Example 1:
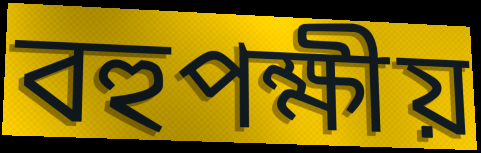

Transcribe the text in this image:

বহুপক্ষীয়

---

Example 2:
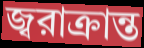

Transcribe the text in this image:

জ্বরাক্রান্ত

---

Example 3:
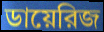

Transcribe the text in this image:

ডায়েরিজ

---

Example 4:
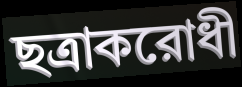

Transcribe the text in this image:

ছত্রাকরোধী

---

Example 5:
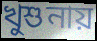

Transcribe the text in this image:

খুশুনায়